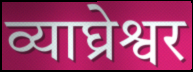
व्याघ्रेश्वर